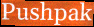
Pushpak